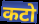
कटो